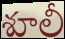
శూలీ